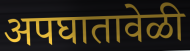
अपघातावेळी